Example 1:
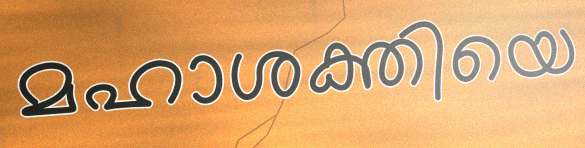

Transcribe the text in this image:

മഹാശക്തിയെ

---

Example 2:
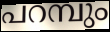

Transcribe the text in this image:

പറമ്പും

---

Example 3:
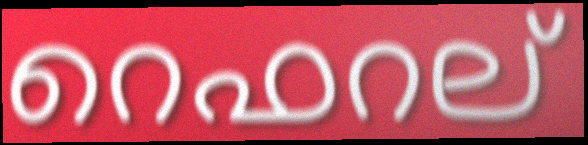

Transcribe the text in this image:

റെഫറല്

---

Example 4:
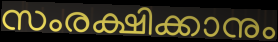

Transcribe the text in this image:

സംരക്ഷിക്കാനും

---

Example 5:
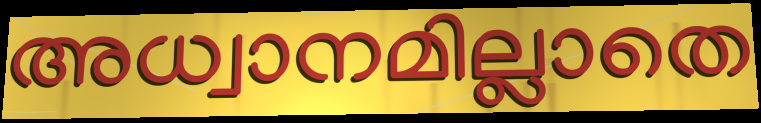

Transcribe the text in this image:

അധ്വാനമില്ലാതെ